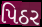
પિઠર